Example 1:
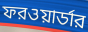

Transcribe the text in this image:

ফরওয়ার্ডার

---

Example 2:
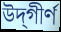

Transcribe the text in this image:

উদ্‌গীর্ণ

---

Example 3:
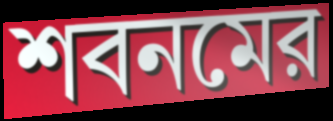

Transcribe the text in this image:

শবনমের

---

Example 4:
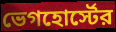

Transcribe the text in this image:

ভেগহোর্স্টের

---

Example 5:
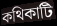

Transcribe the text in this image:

কথিকাটি